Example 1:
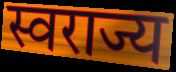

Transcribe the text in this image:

स्वराज्य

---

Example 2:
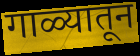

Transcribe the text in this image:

गाळ्यातून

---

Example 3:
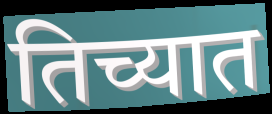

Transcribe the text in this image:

तिच्यात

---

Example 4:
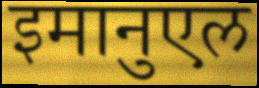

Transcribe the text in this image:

इमानुएल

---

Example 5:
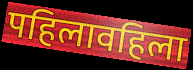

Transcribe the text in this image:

पहिलावहिला